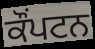
ਕੌਂਪਟਨ